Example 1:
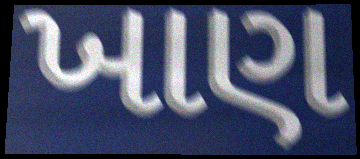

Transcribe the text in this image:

ખાણ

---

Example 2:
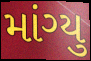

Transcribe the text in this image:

માંગ્યુ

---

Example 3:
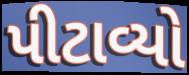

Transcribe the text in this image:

પીટાવ્યો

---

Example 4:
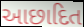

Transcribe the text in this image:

આછાદિત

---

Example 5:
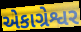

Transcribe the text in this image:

એકાગ્રેશ્વર